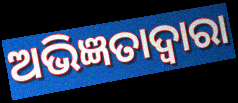
ଅଭିଜ୍ଞତାଦ୍ଵାରା